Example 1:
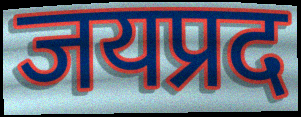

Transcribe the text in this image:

जयप्रद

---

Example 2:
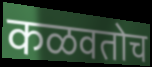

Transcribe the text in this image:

कळवतोच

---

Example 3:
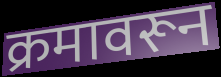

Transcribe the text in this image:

क्रमावरून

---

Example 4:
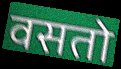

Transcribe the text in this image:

वसतो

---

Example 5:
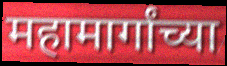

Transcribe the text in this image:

महामार्गांच्या